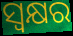
ସ୍ୱକ୍ଷର